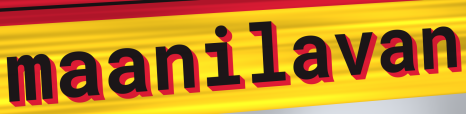
maanilavan